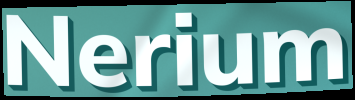
Nerium